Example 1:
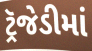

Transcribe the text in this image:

ટ્રૅજેડીમાં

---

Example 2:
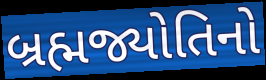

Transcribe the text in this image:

બ્રહ્મજ્યોતિનો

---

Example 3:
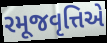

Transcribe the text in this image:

રમૂજવૃત્તિએ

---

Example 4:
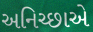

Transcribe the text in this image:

અનિચ્છાએ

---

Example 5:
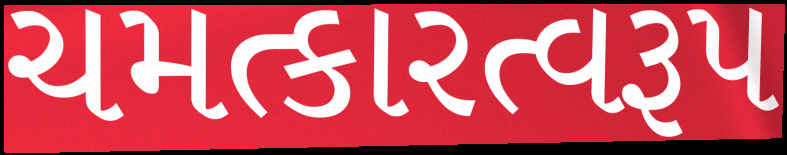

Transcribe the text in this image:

ચમત્કારત્વરૂપ